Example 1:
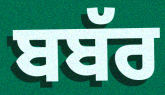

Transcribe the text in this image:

ਬਬੱਰ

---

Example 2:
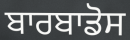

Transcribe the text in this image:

ਬਾਰਬਾਡੋਸ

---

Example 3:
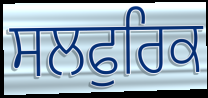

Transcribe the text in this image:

ਸਲਫੁਰਿਕ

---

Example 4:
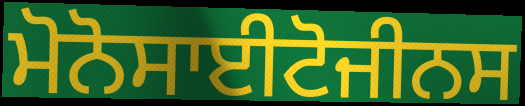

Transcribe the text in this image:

ਮੋਨੋਸਾਈਟੋਜੀਨਸ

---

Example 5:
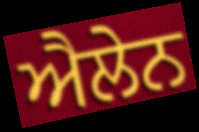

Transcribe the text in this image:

ਐਲੇਨ